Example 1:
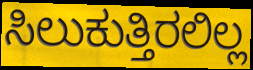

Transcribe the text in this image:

ಸಿಲುಕುತ್ತಿರಲಿಲ್ಲ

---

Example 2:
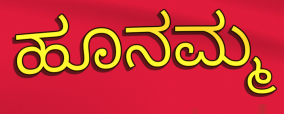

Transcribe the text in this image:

ಹೂನಮ್ಮ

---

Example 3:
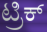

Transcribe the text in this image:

ಟ್ರಿಕ್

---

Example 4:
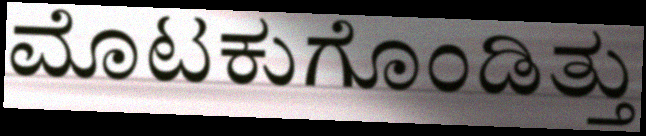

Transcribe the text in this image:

ಮೊಟಕುಗೊಂಡಿತ್ತು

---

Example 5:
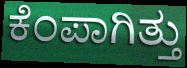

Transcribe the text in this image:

ಕೆಂಪಾಗಿತ್ತು